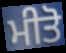
ਮੀਤੋ